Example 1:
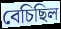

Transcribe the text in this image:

বেচিছিল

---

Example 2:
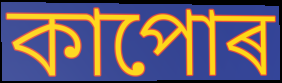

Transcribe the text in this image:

কাপোৰ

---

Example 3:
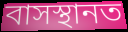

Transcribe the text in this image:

বাসস্থানত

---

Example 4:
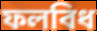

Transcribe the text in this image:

ফলবিধ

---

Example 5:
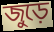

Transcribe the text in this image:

জুড়ে